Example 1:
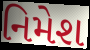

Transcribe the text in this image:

નિમેશ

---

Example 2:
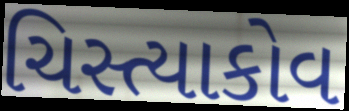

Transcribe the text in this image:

ચિસ્ત્યાકોવ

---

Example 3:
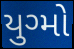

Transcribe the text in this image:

યુગ્મો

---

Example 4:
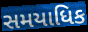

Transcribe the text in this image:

સમયાધિક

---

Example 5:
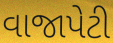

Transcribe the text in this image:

વાજાપેટી